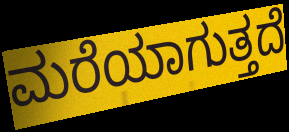
ಮರೆಯಾಗುತ್ತದೆ